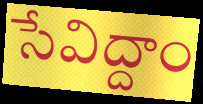
సేవిద్దాం